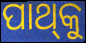
ପାଥ୍‌କୁ